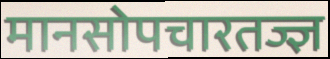
मानसोपचारतज्ज्ञ